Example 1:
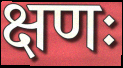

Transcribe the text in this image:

क्षणः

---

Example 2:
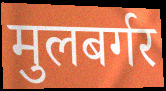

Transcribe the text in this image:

मुलबर्गर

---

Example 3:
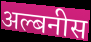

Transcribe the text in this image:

अल्बनीस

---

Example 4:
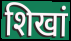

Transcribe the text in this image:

शिखां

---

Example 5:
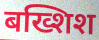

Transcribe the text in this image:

बख्शिश